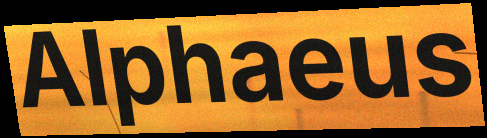
Alphaeus